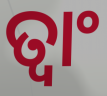
ତ୍ଵାଂ